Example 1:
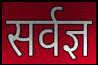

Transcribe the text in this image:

सर्वज्ञ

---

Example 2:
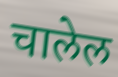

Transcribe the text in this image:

चालेल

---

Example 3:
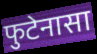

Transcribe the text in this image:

फुटेनासा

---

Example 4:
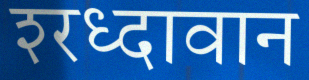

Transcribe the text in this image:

श्रध्दावान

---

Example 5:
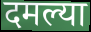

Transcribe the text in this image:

दमल्या